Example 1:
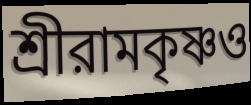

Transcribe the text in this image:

শ্রীরামকৃষ্ণও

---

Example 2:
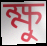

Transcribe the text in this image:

ক্ষু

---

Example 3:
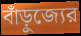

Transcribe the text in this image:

বাঁড়ুজ্যের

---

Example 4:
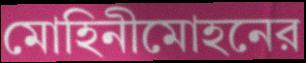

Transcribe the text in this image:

মোহিনীমোহনের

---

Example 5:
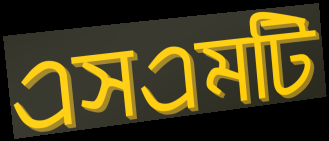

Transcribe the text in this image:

এসএমটি